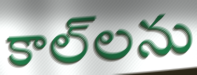
కాల్‌లను